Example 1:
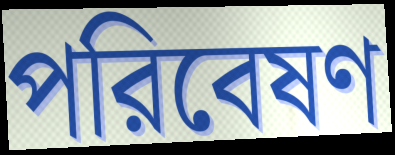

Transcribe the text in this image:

পরিবেষণ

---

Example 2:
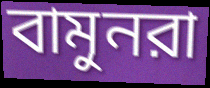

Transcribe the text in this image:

বামুনরা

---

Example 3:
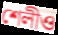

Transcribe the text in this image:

শেলীও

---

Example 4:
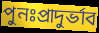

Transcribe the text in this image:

পুনঃপ্রাদুর্ভাব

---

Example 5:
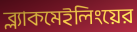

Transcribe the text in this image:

ব্ল্যাকমেইলিংয়ের